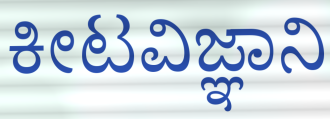
ಕೀಟವಿಜ್ಞಾನಿ